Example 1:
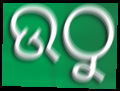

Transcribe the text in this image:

ଉଠୁ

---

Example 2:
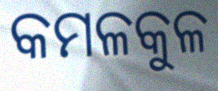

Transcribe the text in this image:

କମଳକୁଳ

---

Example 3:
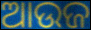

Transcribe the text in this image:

ଆଉଜ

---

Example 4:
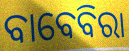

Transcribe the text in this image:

ବାବେବିରା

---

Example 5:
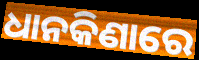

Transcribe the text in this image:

ଧାନକିଣାରେ